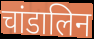
चांडालिन